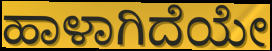
ಹಾಳಾಗಿದೆಯೇ